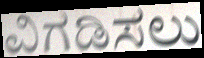
ವಿಗಡಿಸಲು